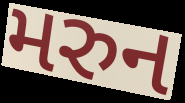
મરુન